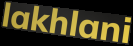
lakhlani